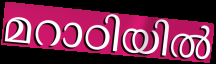
മറാഠിയിൽ